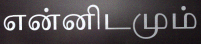
என்னிடமும்